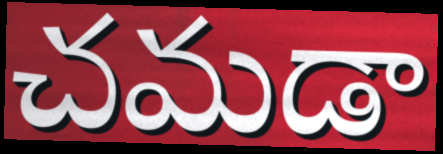
చమడా